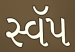
સ્વૅપ